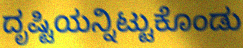
ದೃಷ್ಟಿಯನ್ನಿಟ್ಟುಕೊಂಡು